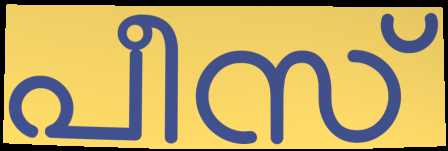
പീസ്